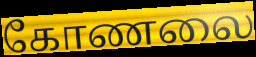
கோணலை